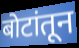
बोटांतून